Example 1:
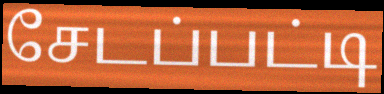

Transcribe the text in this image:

சேடப்பட்டி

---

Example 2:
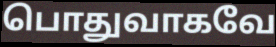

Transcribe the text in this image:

பொதுவாகவே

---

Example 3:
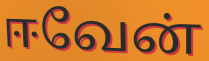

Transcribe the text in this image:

ஈவேன்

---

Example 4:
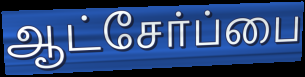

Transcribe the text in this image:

ஆட்சேர்ப்பை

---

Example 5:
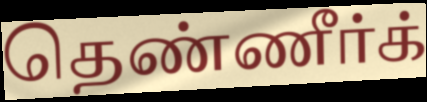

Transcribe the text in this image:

தெண்ணீர்க்